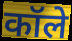
कॉले